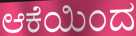
ಆಕೆಯಿಂದ